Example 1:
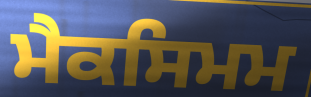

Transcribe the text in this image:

ਮੈਕਸਿਮਮ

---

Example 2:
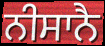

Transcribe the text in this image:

ਨੀਸਾਨੈ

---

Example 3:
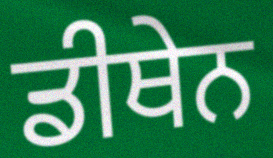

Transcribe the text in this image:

ਡੀਥੇਨ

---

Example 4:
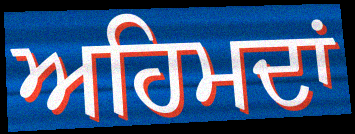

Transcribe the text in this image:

ਅਹਿਮਦਾਂ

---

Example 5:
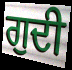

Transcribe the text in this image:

ਗੁਦੀ